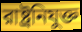
রাষ্ট্রনিযুক্ত